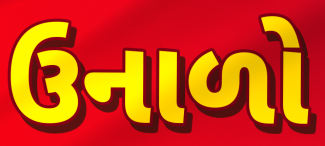
ઉનાળો